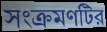
সংক্রমণটির